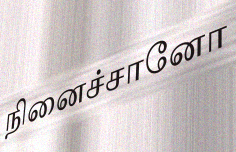
நினைச்சானோ